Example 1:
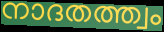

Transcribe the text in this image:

നാദതത്ത്വം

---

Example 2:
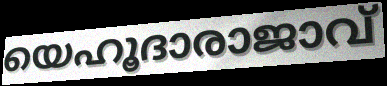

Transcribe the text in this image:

യെഹൂദാരാജാവ്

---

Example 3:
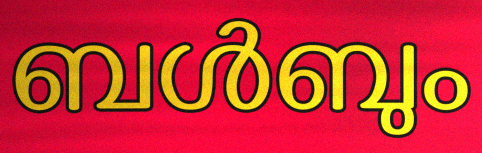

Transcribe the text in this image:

ബൾബും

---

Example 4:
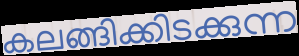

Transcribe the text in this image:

കലങ്ങിക്കിടക്കുന്ന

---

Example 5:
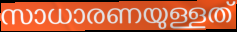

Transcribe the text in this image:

സാധാരണയുള്ളത്